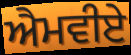
ਐਮਵੀਏ